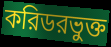
করিডরভুক্ত